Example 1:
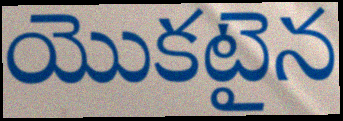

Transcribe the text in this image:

యొకటైన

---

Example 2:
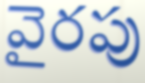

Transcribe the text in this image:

వైరపు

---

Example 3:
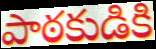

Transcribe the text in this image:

పాఠకుడికి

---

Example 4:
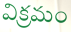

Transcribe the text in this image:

విక్రమం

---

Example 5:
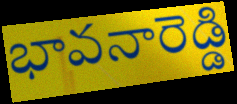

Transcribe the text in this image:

భావనారెడ్డి